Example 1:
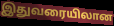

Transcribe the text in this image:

இதுவரையிலான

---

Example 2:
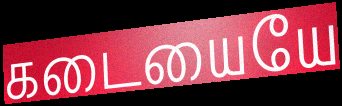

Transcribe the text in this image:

கடையையே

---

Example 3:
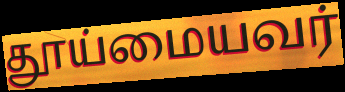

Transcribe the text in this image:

தூய்மையவர்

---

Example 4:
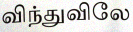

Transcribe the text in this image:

விந்துவிலே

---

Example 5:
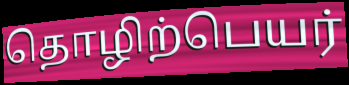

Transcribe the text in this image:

தொழிற்பெயர்